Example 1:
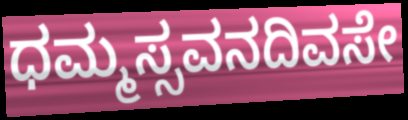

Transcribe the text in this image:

ಧಮ್ಮಸ್ಸವನದಿವಸೇ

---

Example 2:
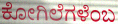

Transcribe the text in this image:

ಕೋಗಿಲೆಗಳೆಂಬ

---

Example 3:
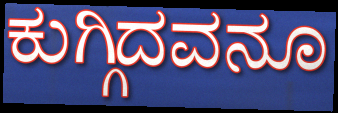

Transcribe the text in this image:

ಕುಗ್ಗಿದವನೂ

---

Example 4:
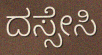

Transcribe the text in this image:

ದಸ್ಸೇಸಿ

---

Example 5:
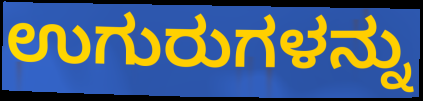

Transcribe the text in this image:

ಉಗುರುಗಳನ್ನು